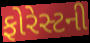
ફોરેસ્ટની